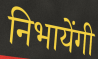
निभायेंगी